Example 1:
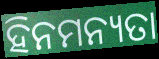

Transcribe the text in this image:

ହିନମନ୍ୟତା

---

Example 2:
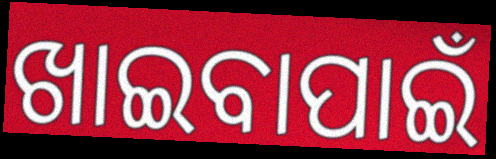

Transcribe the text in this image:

ଖାଇବାପାଇଁ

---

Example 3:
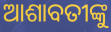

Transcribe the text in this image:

ଆଶାବତୀଙ୍କୁ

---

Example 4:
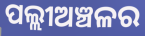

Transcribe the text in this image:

ପଲ୍ଲୀଅଞ୍ଚଳର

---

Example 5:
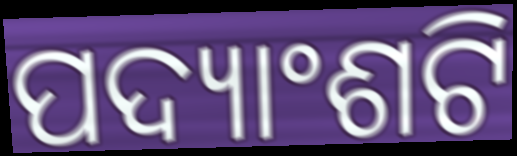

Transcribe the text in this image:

ପଦ୍ୟାଂଶଟି